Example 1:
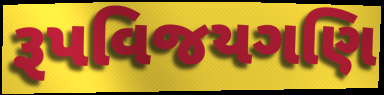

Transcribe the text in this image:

રૂપવિજયગણિ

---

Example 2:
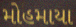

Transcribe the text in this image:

મોહમાયા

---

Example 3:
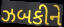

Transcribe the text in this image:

ઝબકીને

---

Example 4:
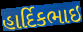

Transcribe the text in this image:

હાર્દિકભાઇ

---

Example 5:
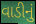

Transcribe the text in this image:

વાડીનું